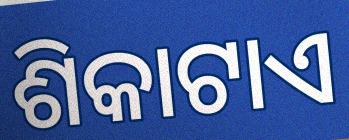
ଶିକାଟାଏ